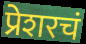
प्रेशरचं